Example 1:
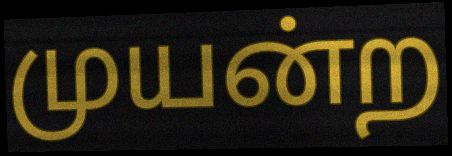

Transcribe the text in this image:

முயன்ற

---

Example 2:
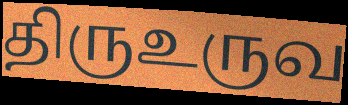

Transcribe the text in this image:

திருஉருவ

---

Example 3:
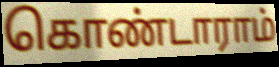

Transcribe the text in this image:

கொண்டாராம்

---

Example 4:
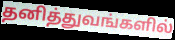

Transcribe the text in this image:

தனித்துவங்களில்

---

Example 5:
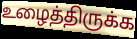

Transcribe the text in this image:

உழைத்திருக்க